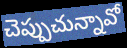
చెప్పుచున్నావో